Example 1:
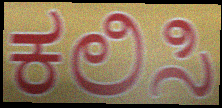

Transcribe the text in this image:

ಕಲಿಸಿ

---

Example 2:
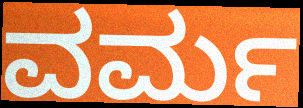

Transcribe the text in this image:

ವರ್ಮ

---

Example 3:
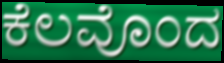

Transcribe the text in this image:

ಕೆಲವೊಂದ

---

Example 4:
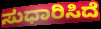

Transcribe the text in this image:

ಸುಧಾರಿಸಿದೆ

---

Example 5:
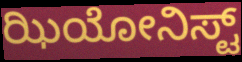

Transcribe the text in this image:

ಝಿಯೋನಿಸ್ಟ್